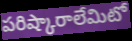
పరిష్కారాలేమిటో